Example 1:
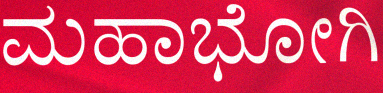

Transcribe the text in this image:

ಮಹಾಭೋಗಿ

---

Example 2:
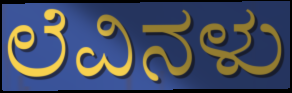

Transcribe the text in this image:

ಲೆವಿನಳು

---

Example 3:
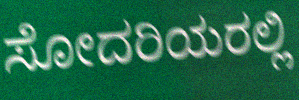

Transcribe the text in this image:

ಸೋದರಿಯರಲ್ಲಿ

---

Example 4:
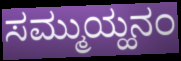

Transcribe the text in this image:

ಸಮ್ಮುಯ್ಹನಂ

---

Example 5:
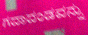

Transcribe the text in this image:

ಗದಾದಂಡವನ್ನು